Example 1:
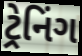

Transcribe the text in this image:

ટ્રેનિંગ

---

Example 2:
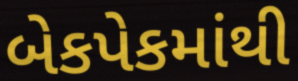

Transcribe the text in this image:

બેકપેકમાંથી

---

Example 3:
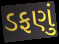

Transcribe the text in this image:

ડફણું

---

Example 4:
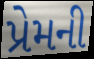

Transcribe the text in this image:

પ્રેમની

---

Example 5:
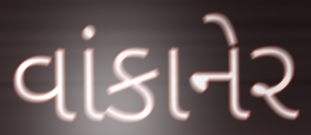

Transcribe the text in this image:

વાંકાનેર